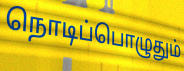
நொடிப்பொழுதும்